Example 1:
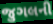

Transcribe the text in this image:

જુગલની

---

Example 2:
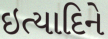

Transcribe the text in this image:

ઇત્‍યાદિને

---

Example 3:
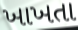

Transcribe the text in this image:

ખાખતા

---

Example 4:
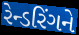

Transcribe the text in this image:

રેન્ડરિંગને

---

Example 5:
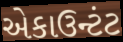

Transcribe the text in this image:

એકાઉન્ટંટ